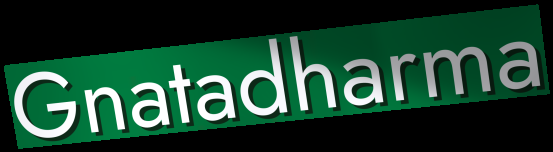
Gnatadharma